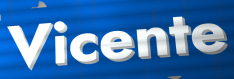
Vicente